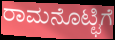
ರಾಮನೊಟ್ಟಿಗೆ